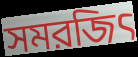
সমরজিৎ